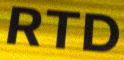
RTD